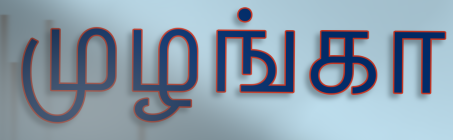
முழங்கா